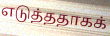
எடுத்ததாகக்